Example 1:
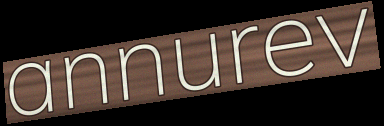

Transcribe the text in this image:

annurev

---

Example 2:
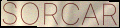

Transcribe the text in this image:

SORCAR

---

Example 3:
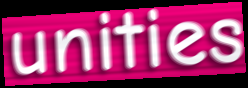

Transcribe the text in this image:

unities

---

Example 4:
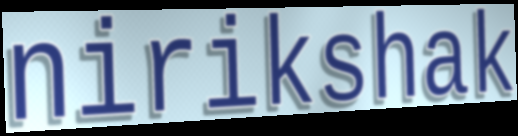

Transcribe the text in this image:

nirikshak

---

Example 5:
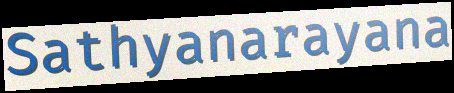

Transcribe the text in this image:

Sathyanarayana